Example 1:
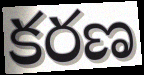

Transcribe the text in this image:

కరణ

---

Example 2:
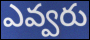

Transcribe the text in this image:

ఎవ్వరు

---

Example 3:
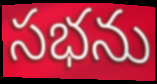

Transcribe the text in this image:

సభను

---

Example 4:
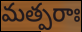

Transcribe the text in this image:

మత్పరాః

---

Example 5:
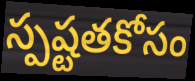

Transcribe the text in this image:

స్పష్టతకోసం